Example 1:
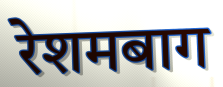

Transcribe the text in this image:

रेशमबाग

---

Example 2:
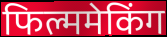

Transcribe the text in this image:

फिल्‍ममेकिंग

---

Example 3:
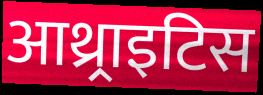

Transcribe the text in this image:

आथ्र्राइटिस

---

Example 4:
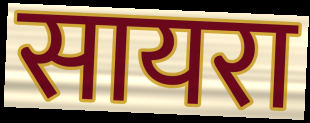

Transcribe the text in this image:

सायरा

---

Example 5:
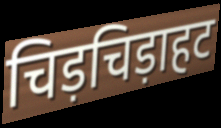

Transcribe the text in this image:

चिड़चिड़ाहट